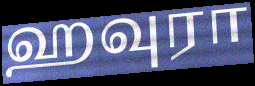
ஹவுரா